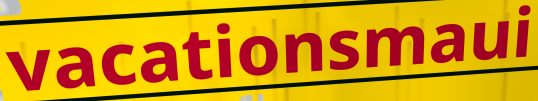
vacationsmaui